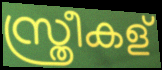
സ്ത്രീകള്